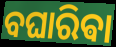
ବଘାରିଵା